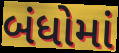
બંધોમાં